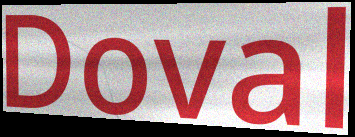
Doval